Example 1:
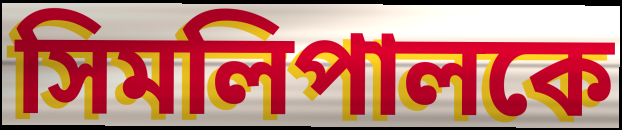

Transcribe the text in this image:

সিমলিপালকে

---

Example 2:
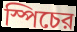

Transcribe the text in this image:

স্পিচের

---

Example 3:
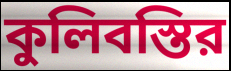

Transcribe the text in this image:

কুলিবস্তির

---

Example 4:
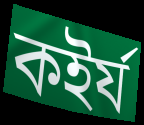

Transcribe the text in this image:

কইর্য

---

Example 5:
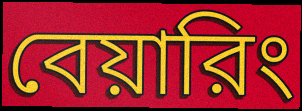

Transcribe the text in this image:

বেয়ারিং